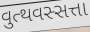
વુત્થવસ્સત્તા